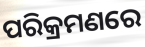
ପରିକ୍ରମଣରେ